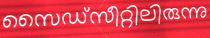
സൈഡ്സീറ്റിലിരുന്നു